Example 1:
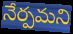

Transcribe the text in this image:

నేర్పమని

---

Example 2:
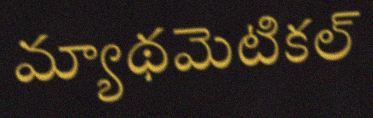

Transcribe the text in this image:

మ్యాథమెటికల్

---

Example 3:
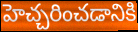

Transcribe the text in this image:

హెచ్చరించడానికి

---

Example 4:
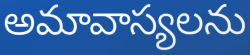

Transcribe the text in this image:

అమావాస్యలను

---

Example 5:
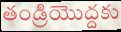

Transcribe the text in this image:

తండ్రియొద్దకు